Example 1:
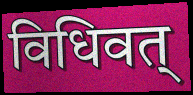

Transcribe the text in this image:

विधिवत्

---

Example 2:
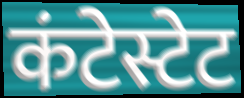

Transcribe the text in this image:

कंटेस्टेट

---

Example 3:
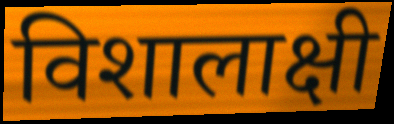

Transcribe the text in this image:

विशालाक्षी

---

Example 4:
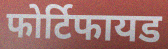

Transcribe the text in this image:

फोर्टिफायड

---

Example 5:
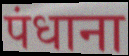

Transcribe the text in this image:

पंधाना